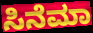
ಸಿನೆಮಾ